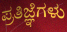
ಪ್ರತಿಜ್ಞೆಗಳು